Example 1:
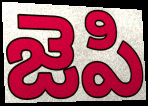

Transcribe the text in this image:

జెపి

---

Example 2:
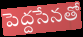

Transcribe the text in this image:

పెద్దసేనతో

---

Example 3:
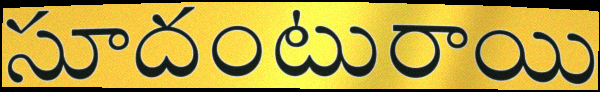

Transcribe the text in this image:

సూదంటురాయి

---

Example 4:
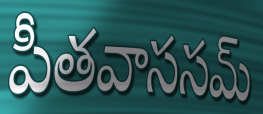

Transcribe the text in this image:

పీతవాససమ్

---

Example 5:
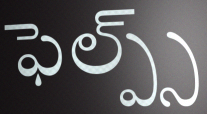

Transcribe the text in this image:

ఫెల్ప్స్